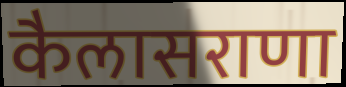
कैलासराणा